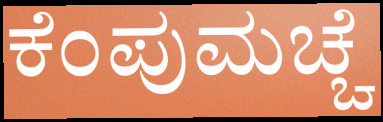
ಕೆಂಪುಮಚ್ಚೆ